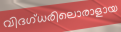
വിദഗ്ധരിലൊരാളായ